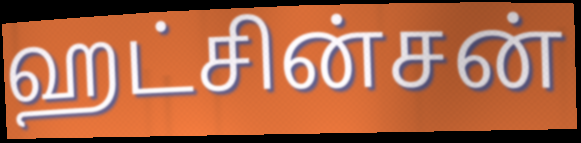
ஹட்சின்சன்